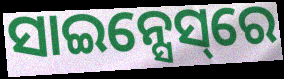
ସାଇନ୍ସେସ୍‌ରେ